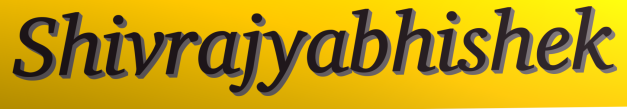
Shivrajyabhishek